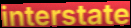
interstate